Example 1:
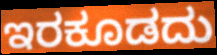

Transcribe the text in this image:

ಇರಕೂಡದು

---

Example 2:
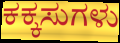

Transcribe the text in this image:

ಕಕ್ಕಸುಗಳು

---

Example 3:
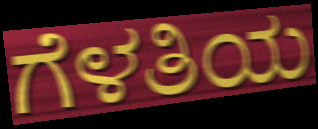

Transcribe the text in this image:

ಗೆಳತಿಯ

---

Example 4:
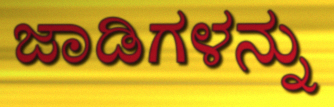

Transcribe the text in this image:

ಜಾಡಿಗಳನ್ನು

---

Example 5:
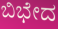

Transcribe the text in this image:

ಬಿಭೇದ